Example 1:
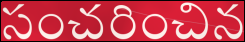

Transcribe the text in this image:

సంచరించిన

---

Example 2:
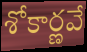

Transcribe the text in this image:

శోకార్ణవే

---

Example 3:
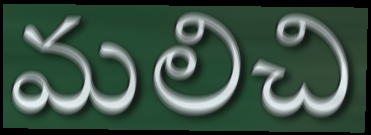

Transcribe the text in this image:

మలిచి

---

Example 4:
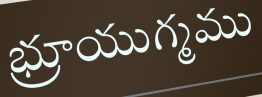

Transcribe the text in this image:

భ్రూయుగ్మము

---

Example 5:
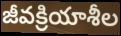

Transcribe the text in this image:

జీవక్రియాశీల